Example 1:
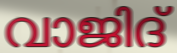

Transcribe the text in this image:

വാജിദ്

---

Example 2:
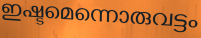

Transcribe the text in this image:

ഇഷ്ടമെന്നൊരുവട്ടം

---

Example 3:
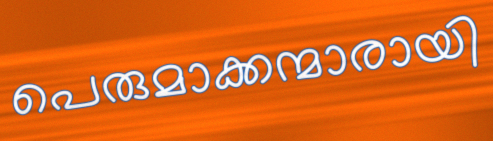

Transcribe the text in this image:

പെരുമാക്കന്മാരായി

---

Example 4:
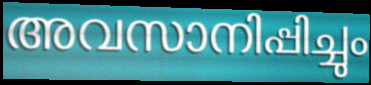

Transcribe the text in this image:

അവസാനിപ്പിച്ചും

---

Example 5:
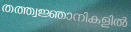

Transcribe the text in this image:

തത്ത്വജ്ഞാനികളിൽ